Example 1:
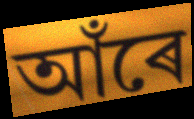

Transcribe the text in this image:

আঁৰে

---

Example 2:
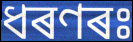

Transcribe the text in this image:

ধৰণৰঃ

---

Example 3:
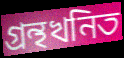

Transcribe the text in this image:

গ্ৰন্থখনিত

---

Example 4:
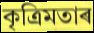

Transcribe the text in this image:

কৃত্ৰিমতাৰ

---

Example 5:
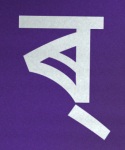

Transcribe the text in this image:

ৰ্